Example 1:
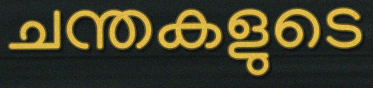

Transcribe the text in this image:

ചന്തകളുടെ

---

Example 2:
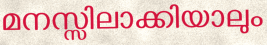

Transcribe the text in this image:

മനസ്സിലാക്കിയാലും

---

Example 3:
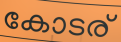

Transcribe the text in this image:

കോടര്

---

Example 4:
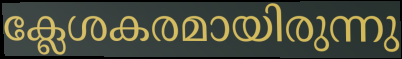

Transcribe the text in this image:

ക്ലേശകരമായിരുന്നു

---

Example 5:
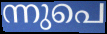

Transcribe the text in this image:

ന്നുപെ